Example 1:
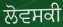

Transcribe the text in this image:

ਲੋਵਸਕੀ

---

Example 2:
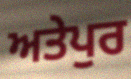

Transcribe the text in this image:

ਅਤੇਪੁਰ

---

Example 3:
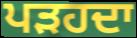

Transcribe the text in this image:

ਪੜਹਦਾ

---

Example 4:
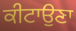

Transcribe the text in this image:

ਕੀਟਾਉਣਾ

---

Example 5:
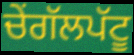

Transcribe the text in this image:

ਚੇਂਗੱਲਪੱਟੂ